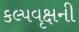
કલ્પવૃક્ષની